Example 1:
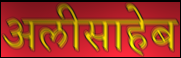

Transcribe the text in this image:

अलीसाहेब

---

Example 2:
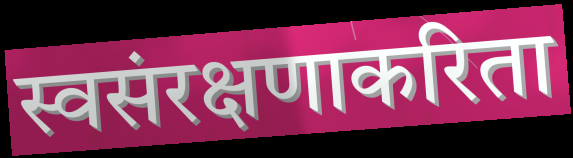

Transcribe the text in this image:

स्वसंरक्षणाकरिता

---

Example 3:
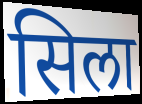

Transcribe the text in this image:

सिला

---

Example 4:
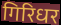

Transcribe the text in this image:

गिरिधर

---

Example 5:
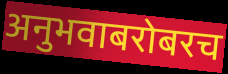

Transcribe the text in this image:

अनुभवाबरोबरच